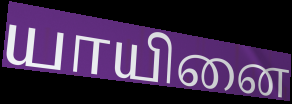
யாயினை